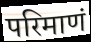
परिमाणं